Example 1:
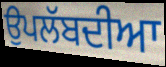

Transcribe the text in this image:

ਉਪਲੱਬਦੀਆ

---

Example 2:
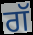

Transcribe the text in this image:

ਗੱ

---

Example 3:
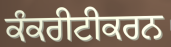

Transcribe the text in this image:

ਕੰਕਰੀਟੀਕਰਨ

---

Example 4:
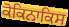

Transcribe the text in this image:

ਕੋਕਿਨਾਕਿਸ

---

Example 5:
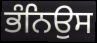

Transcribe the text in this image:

ਭੰਨਿਉਸ